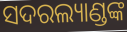
ସଦରଲ୍ୟାଣ୍ଡଙ୍କ